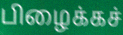
பிழைக்கச்